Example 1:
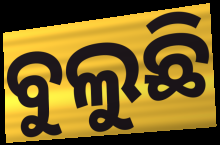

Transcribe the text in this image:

ବୁଲୁଛି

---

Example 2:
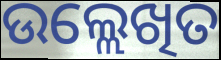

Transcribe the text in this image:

ଉଲ୍ଲେଖିତ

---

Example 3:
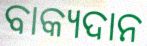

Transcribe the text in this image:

ବାକ୍ୟଦାନ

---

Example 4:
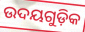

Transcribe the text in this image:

ଉଦୟଗୁଡ଼ିକ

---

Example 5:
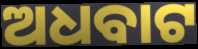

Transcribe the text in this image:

ଅଧବାଟ